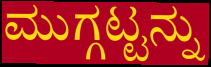
ಮುಗ್ಗಟ್ಟನ್ನು